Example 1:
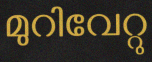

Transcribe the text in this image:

മുറിവേറ്റു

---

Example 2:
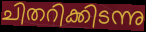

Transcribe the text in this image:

ചിതറിക്കിടന്നു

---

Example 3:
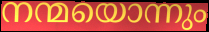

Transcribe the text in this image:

നന്മയൊന്നും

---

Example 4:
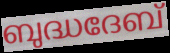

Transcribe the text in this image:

ബുദ്ധദേബ്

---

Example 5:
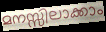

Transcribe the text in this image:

മനസ്സിലാക്കാം